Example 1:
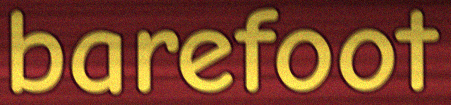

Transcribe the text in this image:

barefoot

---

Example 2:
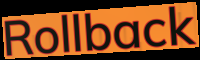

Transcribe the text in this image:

Rollback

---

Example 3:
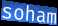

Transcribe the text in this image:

soham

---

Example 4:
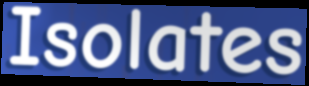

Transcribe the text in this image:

Isolates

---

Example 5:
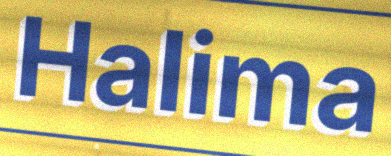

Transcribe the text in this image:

Halima